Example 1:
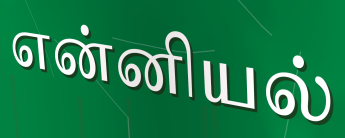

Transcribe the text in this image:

என்னியல்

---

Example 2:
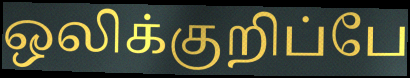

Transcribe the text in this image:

ஒலிக்குறிப்பே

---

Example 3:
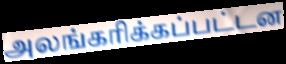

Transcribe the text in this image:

அலங்கரிக்கப்பட்டன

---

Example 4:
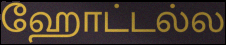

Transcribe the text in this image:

ஹோட்டல்ல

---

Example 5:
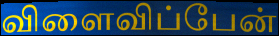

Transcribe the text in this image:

விளைவிப்பேன்